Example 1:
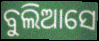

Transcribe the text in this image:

ବୁଲିଆସେ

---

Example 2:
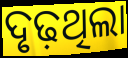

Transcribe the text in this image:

ଦୃଢ଼ଥିଲା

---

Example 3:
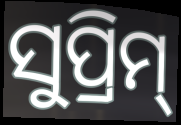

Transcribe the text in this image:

ସୁପ୍ରିମ୍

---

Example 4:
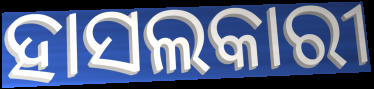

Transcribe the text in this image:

ହାସଲକାରୀ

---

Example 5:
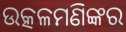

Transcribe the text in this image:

ଉତ୍କଳମଣିଙ୍କର